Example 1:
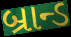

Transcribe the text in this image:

બ્રાન્ડ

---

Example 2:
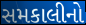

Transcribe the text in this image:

સમકાલીનો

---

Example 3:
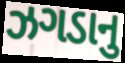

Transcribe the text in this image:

ઝગડાનુ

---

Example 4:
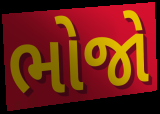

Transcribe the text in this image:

ભોજો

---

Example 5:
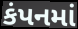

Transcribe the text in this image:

કંપનમાં